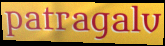
patragalu